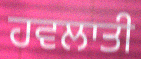
ਹਵਲਾਤੀ